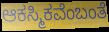
ಆಕಸ್ಮಿಕವೆಂಬಂತೆ